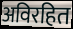
अविरहित